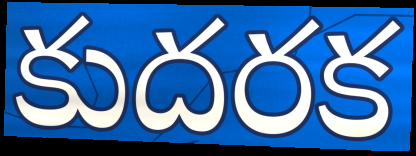
కుదరక